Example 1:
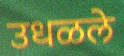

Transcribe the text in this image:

उधळले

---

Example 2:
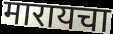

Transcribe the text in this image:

मारायचा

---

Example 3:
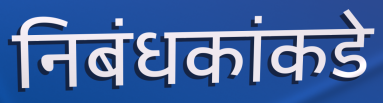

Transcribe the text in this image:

निबंधकांकडे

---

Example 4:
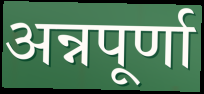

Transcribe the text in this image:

अन्नपूर्णा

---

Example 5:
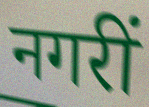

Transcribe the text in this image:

नगरीं